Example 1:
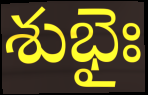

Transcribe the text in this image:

శుభైః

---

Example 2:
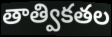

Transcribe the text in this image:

తాత్వికతల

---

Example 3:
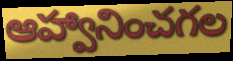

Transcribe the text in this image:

ఆహ్వానించగల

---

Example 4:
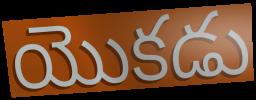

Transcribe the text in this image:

యొకడు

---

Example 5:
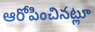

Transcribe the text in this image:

ఆరోపించినట్లూ